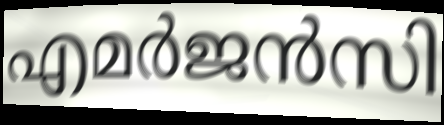
എമർജൻസി